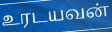
உரடயவன்